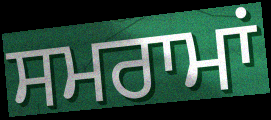
ਸਮਰਾਮਾਂ